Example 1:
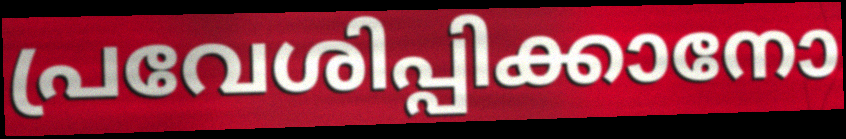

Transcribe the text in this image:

പ്രവേശിപ്പിക്കാനോ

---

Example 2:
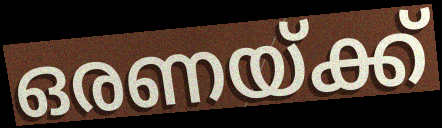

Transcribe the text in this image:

ഒരണയ്ക്ക്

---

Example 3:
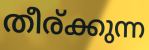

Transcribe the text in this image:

തീര്ക്കുന്ന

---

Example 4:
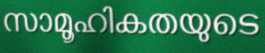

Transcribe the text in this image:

സാമൂഹികതയുടെ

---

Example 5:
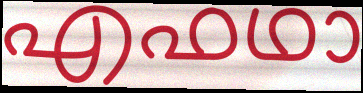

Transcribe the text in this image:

എഫഥാ